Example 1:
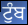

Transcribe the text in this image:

ਟੁੰਬ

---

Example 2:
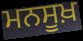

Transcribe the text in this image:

ਮਨਸੂਖ਼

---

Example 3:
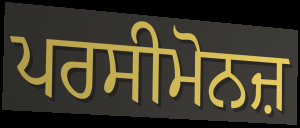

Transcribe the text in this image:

ਪਰਸੀਮੋਨਜ਼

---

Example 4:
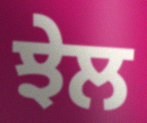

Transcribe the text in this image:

ਝੇਲ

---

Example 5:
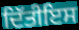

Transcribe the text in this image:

ਦਿੱਤੀਇਸ